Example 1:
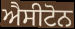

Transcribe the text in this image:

ਐਸੀਟੋਨ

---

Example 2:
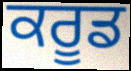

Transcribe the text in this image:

ਕਰੂਡ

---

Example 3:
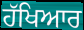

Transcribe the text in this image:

ਹੱਖਿਆਰ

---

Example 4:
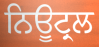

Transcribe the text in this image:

ਨਿਊਟ੍ਰਲ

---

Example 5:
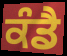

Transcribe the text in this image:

ਕੰਡੈ